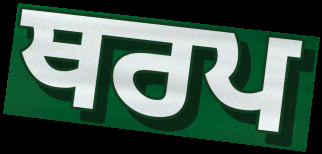
ਥਰਪ